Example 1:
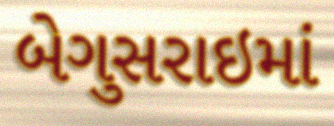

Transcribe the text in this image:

બેગુસરાઇમાં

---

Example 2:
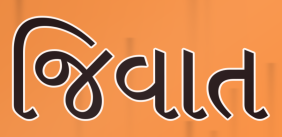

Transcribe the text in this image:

જિવાત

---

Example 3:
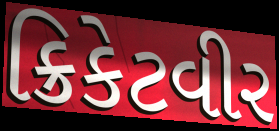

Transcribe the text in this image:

ક્રિકેટવીર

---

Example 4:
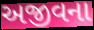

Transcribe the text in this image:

અજીવના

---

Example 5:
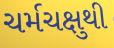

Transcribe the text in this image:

ચર્મચક્ષુથી